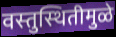
वस्तुस्थितीमुळे